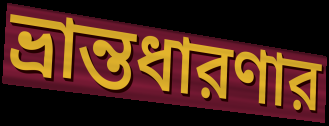
ভ্রান্তধারণার